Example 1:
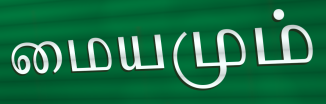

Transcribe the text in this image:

மையமும்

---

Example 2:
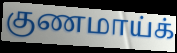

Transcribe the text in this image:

குணமாய்க்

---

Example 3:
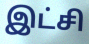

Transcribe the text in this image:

இட்சி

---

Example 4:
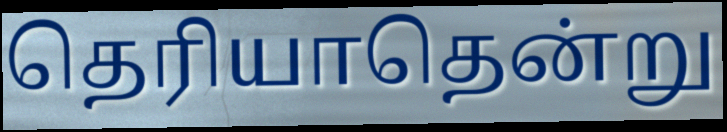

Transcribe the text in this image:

தெரியாதென்று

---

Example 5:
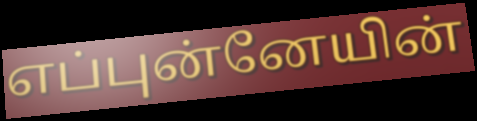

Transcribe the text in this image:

எப்புன்னேயின்